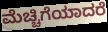
ಮೆಚ್ಚಿಗೆಯಾದರೆ